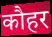
कौहर